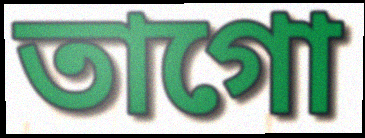
তাগো